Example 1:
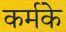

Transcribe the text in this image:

कर्मके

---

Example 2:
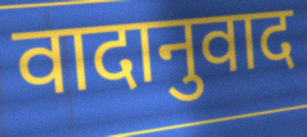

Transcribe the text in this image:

वादानुवाद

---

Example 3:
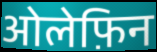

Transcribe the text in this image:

ओलेफ़िन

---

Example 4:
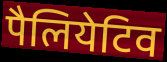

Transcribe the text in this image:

पैलियेटिव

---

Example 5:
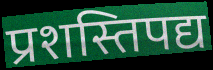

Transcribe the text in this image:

प्रशस्तिपद्य